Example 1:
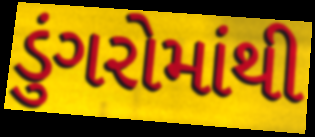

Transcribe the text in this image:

ડુંગરોમાંથી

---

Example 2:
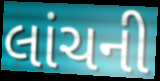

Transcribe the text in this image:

લાંચની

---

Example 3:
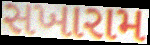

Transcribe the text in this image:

સખારામ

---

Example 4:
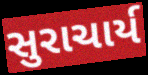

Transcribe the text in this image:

સુરાચાર્ય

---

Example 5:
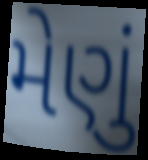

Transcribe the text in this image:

મેણું